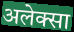
अलेक्‍सा